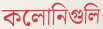
কলোনিগুলি